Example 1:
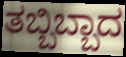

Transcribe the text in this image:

ತಬ್ಬಿಬ್ಬಾದ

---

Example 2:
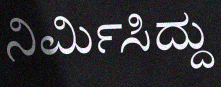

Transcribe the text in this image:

ನಿರ್ಮಿಸಿದ್ದು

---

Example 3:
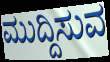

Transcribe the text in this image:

ಮುದ್ದಿಸುವ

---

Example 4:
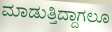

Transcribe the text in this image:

ಮಾಡುತ್ತಿದ್ದಾಗಲೂ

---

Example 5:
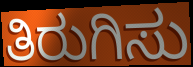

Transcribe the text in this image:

ತಿರುಗಿಸು